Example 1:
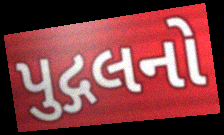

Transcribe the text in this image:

પુદ્ગલનો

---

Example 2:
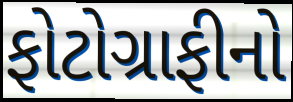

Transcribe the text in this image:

ફોટોગ્રાફીનો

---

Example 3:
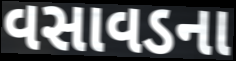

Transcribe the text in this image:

વસાવડના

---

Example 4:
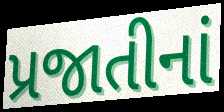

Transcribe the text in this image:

પ્રજાતીનાં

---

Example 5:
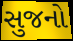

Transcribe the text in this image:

સુજનો